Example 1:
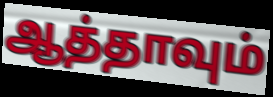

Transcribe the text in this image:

ஆத்தாவும்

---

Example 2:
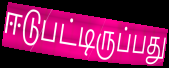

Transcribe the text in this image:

ஈடுபட்டிருப்பது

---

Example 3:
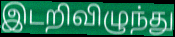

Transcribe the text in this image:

இடறிவிழுந்து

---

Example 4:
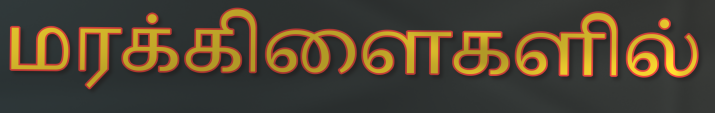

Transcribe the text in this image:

மரக்கிளைகளில்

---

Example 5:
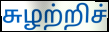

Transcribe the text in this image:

சுழற்றிச்